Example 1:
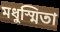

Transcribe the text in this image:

মধুস্মিতা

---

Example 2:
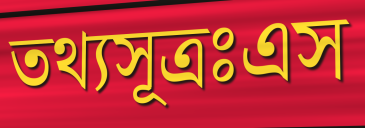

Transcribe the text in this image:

তথ্যসূত্রঃএস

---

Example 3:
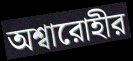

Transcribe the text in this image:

অশ্বারোহীর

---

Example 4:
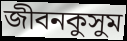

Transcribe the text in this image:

জীবনকুসুম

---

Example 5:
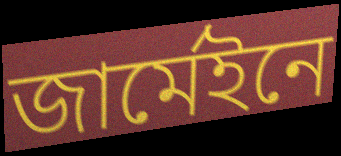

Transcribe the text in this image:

জার্মেইনে